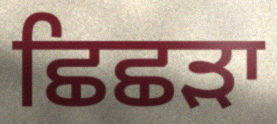
ਛਿਛੜਾ